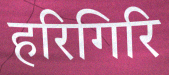
हरिगिरि